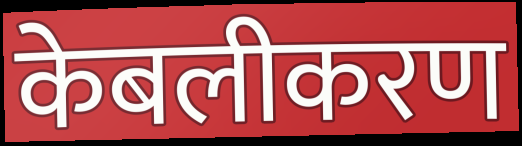
केबलीकरण